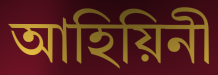
আহিয়িনী